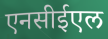
एनसीईएल